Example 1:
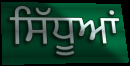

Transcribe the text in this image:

ਸਿੱਧੂਆਂ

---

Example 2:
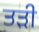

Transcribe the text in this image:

ਤੜੀ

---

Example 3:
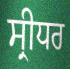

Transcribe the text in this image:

ਸ੍ਰੀਧਰ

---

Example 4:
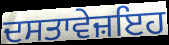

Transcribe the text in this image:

ਦਸਤਾਵੇਜ਼ਇਹ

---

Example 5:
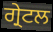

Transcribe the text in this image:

ਗ੍ਰੇਟਲ